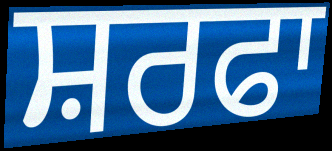
ਸ਼ਰਫਾ